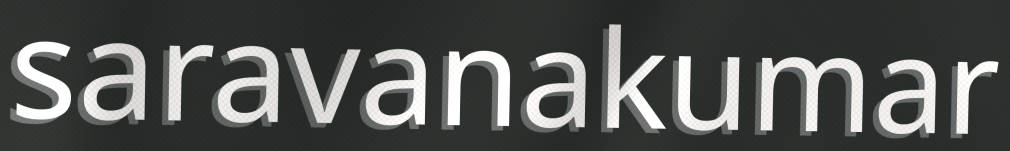
saravanakumar